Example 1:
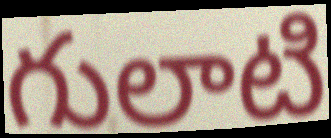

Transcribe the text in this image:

గులాటి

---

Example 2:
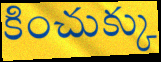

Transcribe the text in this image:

కించుక్కు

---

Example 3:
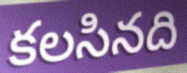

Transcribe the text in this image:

కలసినది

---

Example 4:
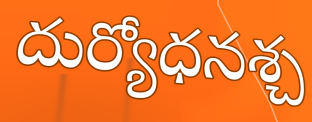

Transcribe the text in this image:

దుర్యోధనశ్చ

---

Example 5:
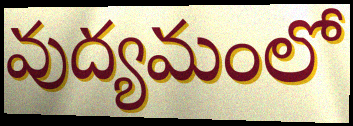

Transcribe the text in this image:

వుద్యమంలో